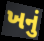
ખનું